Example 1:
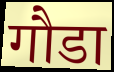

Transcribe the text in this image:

गौडा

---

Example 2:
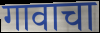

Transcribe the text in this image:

गावाचा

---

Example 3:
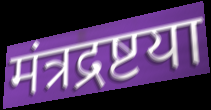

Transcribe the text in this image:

मंत्रद्रष्टया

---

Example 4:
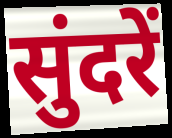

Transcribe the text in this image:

सुंदरें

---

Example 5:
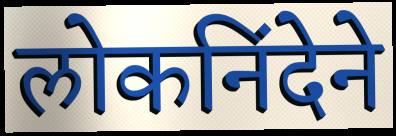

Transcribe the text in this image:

लोकनिंदेने